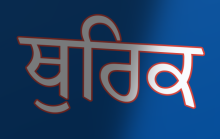
ਥੁਰਿਕ